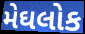
મેઘલોક